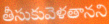
తీసుకువెళతానని